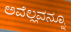
ಅವೆಲ್ಲವನ್ನೂ